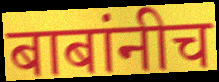
बाबांनीच